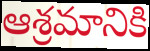
ఆశ్రమానికి